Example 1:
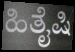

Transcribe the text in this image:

ಹಿತೈಷಿ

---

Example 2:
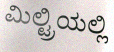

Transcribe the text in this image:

ಮಿಲ್ಟ್ರಿಯಲ್ಲಿ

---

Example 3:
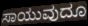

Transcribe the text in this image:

ಸಾಯುವುದೂ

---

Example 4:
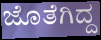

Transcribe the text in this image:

ಜೊತೆಗಿದ್ದ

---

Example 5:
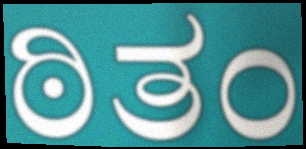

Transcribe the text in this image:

ಠಿತಂ